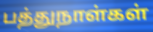
பத்துநாள்கள்